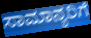
ಸಾಮಾನ್ಯರಿಗೆ